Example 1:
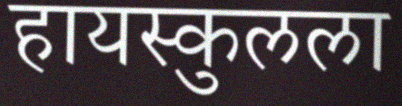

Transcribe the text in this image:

हायस्कुलला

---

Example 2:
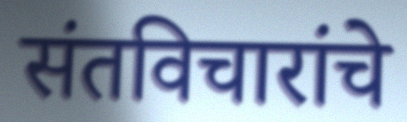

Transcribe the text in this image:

संतविचारांचे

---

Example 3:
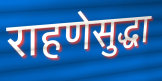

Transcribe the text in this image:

राहणेसुद्धा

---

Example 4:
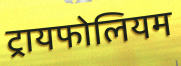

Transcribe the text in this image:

ट्रायफोलियम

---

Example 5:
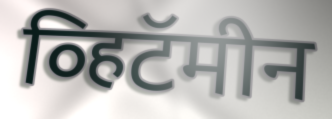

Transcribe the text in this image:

व्हिटॅमीन